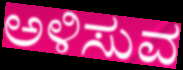
ಅಳಿಸುವ